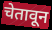
चेतावून